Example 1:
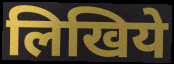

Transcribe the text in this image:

लिखिये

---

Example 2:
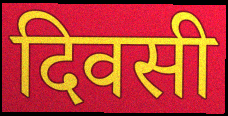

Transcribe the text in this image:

दिवसी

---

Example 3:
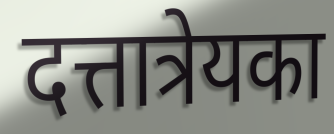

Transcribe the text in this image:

दत्तात्रेयका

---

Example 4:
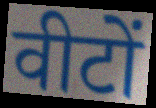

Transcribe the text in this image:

वीटों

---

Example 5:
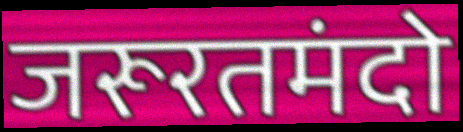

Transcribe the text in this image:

जरूरतमंदो